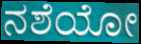
ನಶೆಯೋ